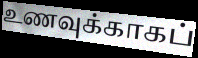
உணவுக்காகப்